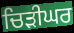
ਚਿੜੀਘਰ